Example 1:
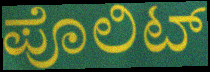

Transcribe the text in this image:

ಪೊಲಿಟ್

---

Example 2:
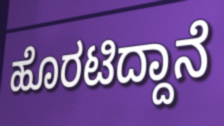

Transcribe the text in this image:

ಹೊರಟಿದ್ದಾನೆ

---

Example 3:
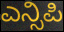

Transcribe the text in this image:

ಎನ್ಸಿಪಿ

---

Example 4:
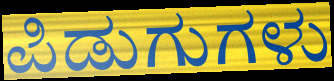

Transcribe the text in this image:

ಪಿಡುಗುಗಳು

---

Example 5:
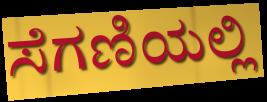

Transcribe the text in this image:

ಸೆಗಣಿಯಲ್ಲಿ